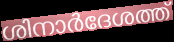
ശിനാർദേശത്ത്